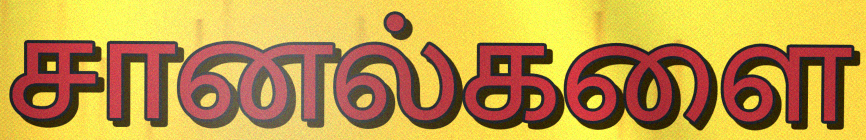
சானல்களை